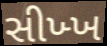
સીખ્ખ